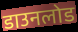
डाउनलोड